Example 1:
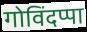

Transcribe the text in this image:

गोविंदप्पा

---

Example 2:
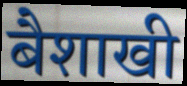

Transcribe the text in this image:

बैशाखी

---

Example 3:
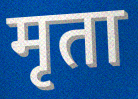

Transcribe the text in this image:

मृता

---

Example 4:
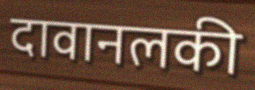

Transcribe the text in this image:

दावानलकी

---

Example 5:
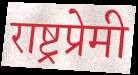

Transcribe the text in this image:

राष्ट्रप्रेमी